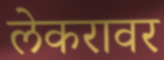
लेकरावर